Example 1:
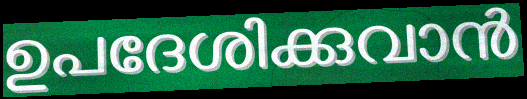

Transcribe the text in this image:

ഉപദേശിക്കുവാൻ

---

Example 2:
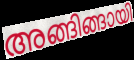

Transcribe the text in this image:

അങ്ങിങ്ങായി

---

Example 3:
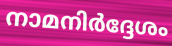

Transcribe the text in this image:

നാമനിർദ്ദേശം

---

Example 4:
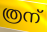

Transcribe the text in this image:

ത്രന്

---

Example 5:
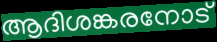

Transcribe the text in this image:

ആദിശങ്കരനോട്